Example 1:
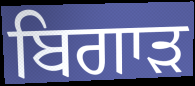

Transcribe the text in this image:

ਬਿਗਾੜ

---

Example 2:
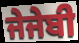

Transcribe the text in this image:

ਜੇਜੇਬੀ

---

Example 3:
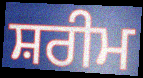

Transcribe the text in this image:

ਸ਼ਰੀਮ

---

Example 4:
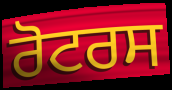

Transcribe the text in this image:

ਰੋਟਰਸ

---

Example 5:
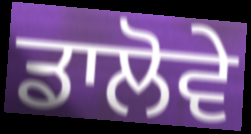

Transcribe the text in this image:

ਡਾਲੋਵੇ